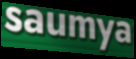
saumya